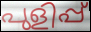
പുളിപ്പ്